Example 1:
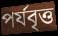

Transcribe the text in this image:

পর্যবৃত্ত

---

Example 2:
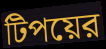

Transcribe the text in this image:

টিপয়ের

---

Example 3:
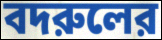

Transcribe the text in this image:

বদরুলের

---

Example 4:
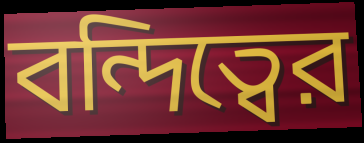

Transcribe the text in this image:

বন্দিত্বের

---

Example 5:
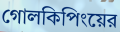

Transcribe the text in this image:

গোলকিপিংয়ের